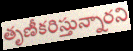
తృణీకరిస్తున్నారని